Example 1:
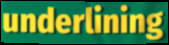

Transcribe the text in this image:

underlining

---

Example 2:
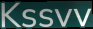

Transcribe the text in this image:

Kssvv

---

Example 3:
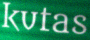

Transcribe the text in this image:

kutas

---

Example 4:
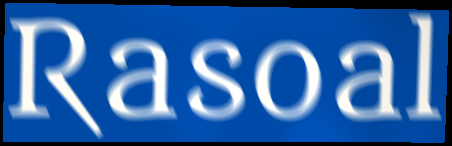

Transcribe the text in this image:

Rasoal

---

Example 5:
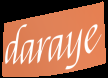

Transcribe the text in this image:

daraye